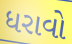
ધરાવો